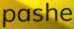
pashe